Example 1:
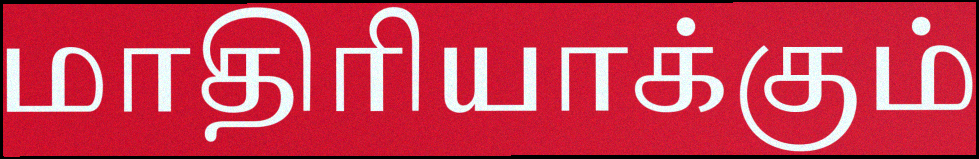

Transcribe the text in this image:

மாதிரியாக்கும்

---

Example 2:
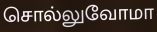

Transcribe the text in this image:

சொல்லுவோமா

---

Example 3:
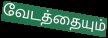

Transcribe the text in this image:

வேடத்தையும்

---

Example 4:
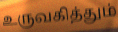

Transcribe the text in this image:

உருவகித்தும்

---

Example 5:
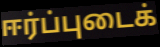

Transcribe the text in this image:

ஈர்ப்புடைக்